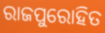
ରାଜପୁରୋହିତ